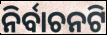
ନିର୍ବାଚନଟି